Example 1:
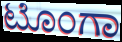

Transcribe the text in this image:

ಟೊಂಗಾ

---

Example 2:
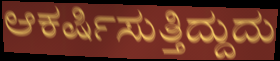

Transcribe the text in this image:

ಆಕರ್ಷಿಸುತ್ತಿದ್ದುದು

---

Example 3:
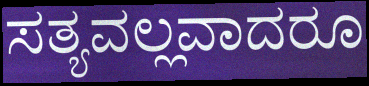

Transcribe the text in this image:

ಸತ್ಯವಲ್ಲವಾದರೂ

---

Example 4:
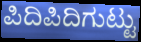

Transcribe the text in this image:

ಪಿದಿಪಿದಿಗುಟ್ಟು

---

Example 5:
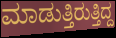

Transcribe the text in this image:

ಮಾಡುತ್ತಿರುತ್ತಿದ್ದ